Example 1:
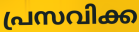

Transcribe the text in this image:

പ്രസവിക്ക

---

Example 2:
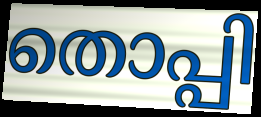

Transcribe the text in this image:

തൊപ്പി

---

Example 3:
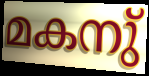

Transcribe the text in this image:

മകനു്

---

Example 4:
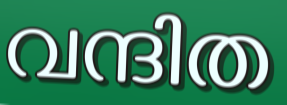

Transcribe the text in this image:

വന്ദിത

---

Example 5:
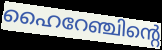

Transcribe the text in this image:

ഹൈറേഞ്ചിന്റെ